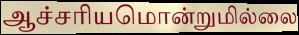
ஆச்சரியமொன்றுமில்லை